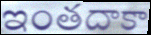
ఇంతదాకా